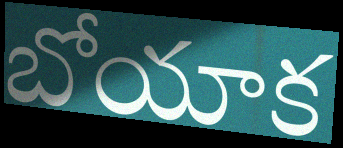
బోయాక